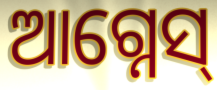
ଆଗ୍ନେସ୍